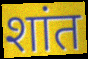
शांत